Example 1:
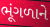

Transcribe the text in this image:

ભૂંગળાને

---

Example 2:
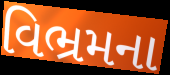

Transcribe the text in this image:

વિભ્રમના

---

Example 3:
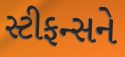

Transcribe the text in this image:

સ્ટીફન્સને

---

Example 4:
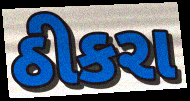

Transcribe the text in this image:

ઠીકરા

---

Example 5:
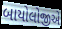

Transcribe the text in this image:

બાયોલોજીએ